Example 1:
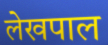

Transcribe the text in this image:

लेखपाल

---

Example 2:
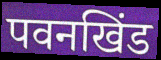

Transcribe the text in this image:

पवनखिंड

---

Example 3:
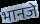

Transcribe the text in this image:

भानजे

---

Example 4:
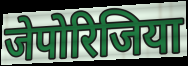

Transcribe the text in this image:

जेपोरिजिया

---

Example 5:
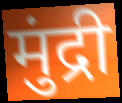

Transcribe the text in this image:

मुंद्री